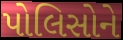
પોલિસોને